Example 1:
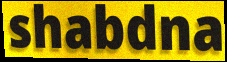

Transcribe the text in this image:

shabdna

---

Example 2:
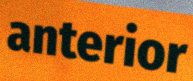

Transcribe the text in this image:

anterior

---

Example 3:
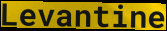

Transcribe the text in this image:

Levantine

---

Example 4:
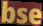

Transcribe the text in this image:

bse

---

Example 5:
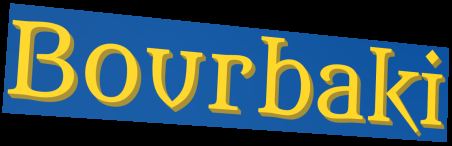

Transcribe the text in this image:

Bourbaki